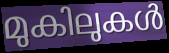
മുകിലുകൾ